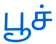
பூச்